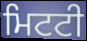
ਮਿਟਟੀ